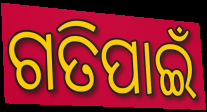
ଗତିପାଇଁ